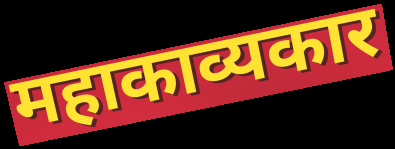
महाकाव्यकार